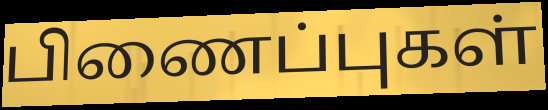
பிணைப்புகள்